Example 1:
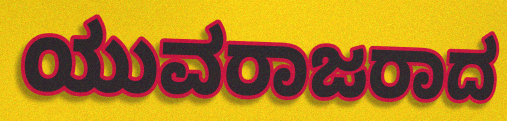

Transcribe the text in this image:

ಯುವರಾಜರಾದ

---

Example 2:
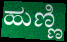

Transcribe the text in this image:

ಹುಣ್ಣಿ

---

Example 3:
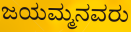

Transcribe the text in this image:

ಜಯಮ್ಮನವರು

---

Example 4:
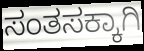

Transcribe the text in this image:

ಸಂತಸಕ್ಕಾಗಿ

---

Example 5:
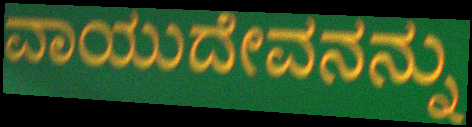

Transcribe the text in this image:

ವಾಯುದೇವನನ್ನು